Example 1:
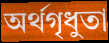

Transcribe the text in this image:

অর্থগৃধুতা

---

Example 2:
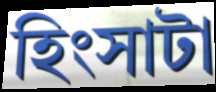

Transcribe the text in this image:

হিংসাটা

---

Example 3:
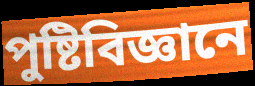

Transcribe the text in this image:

পুষ্টিবিজ্ঞানে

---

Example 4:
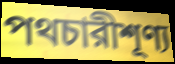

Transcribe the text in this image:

পথচারীশূণ্য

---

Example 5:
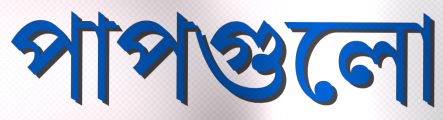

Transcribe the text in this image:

পাপগুলো